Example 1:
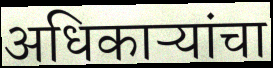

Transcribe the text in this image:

अधिकाऱ्यांचा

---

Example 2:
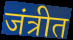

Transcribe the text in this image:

जंत्रीत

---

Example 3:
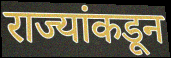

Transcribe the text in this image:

राज्यांकडून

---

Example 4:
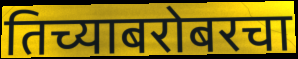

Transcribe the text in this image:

तिच्याबरोबरचा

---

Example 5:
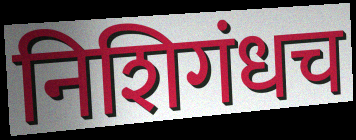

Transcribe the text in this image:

निशिगंधच